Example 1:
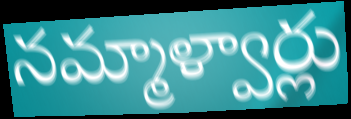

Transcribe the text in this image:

నమ్మాళ్వార్లు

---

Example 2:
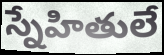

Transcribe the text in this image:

స్నేహితులే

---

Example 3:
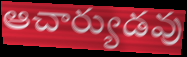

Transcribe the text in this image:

ఆచార్యుడవు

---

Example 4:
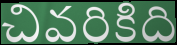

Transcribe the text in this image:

చివరికిది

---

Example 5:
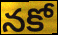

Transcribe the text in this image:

నకో